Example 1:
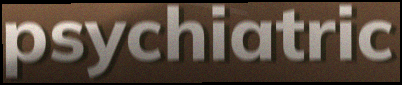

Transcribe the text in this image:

psychiatric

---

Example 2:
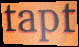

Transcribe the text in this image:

tapt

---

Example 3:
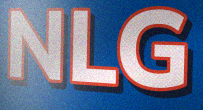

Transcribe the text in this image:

NLG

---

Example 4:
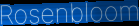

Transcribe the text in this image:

Rosenbloom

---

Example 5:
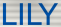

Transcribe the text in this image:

LILY